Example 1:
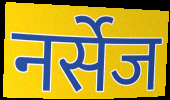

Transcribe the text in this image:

नर्सेज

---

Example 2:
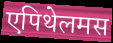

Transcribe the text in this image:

एपिथेलमस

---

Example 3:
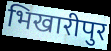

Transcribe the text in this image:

भिखारीपुर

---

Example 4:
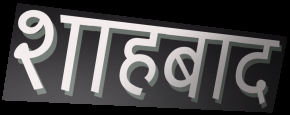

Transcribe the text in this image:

शाहबाद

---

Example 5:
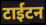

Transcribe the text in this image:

टाईटन